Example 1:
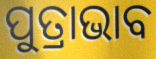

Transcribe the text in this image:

ପୁତ୍ରାଭାବ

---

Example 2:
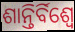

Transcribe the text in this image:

ଶାନ୍ତିର୍ବିଶ୍ୱେ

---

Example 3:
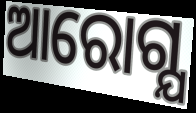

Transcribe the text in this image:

ଆରୋଗ୍ଯ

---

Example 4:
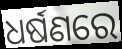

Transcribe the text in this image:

ଧର୍ଷଣରେ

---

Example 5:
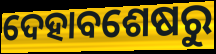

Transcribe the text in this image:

ଦେହାବଶେଷରୁ